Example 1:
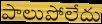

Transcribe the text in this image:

పాలుపోలేదు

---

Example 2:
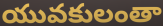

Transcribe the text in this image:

యువకులంతా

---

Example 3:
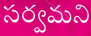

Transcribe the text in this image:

సర్వమని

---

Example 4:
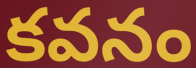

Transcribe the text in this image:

కవనం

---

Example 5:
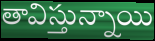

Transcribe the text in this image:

తావిస్తున్నాయి